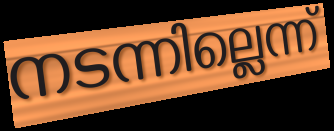
നടന്നില്ലെന്ന്